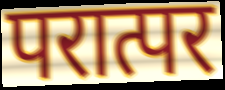
परात्पर